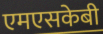
एमएसकेबी